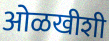
ओळखीशी